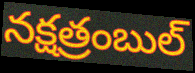
నక్షత్రంబుల్